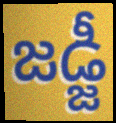
జడ్జీ